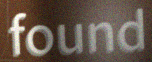
found